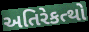
અતિરેકત્થો